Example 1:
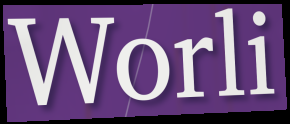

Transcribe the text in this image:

Worli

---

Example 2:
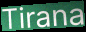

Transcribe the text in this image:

Tirana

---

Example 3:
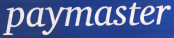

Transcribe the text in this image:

paymaster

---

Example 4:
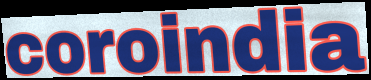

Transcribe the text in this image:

coroindia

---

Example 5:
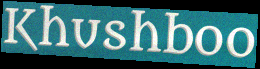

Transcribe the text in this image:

Khushboo